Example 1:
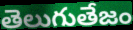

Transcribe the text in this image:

తెలుగుతేజం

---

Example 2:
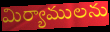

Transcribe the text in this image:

మిర్యాములను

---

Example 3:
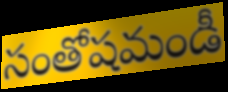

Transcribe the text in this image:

సంతోషమండీ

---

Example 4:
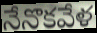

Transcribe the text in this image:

నేనొకవేళ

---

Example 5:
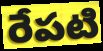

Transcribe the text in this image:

రేపటి